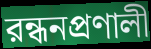
রন্ধনপ্রণালী